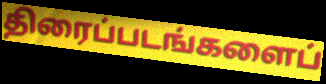
திரைப்படங்களைப்